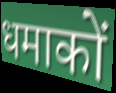
धमाकों